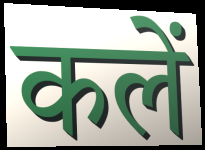
कलें